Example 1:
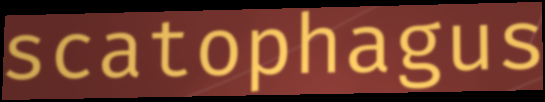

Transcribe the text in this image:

scatophagus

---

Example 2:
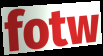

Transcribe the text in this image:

fotw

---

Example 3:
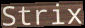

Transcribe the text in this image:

Strix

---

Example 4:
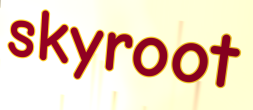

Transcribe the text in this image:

skyroot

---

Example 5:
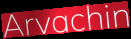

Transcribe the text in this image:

Arvachin